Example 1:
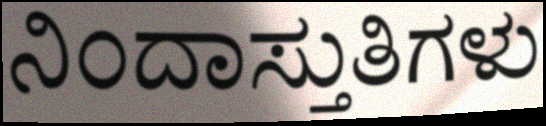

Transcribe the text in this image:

ನಿಂದಾಸ್ತುತಿಗಳು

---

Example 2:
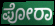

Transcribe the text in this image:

ಪೋರಾ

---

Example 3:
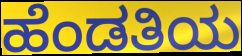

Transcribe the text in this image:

ಹೆಂಡತಿಯ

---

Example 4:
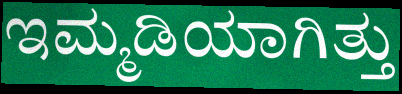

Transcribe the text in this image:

ಇಮ್ಮಡಿಯಾಗಿತ್ತು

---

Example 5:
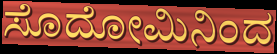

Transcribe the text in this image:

ಸೊದೋಮಿನಿಂದ